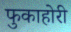
फुकाहोरी